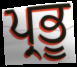
ਪ੍ਰਭੂ